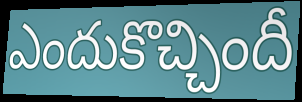
ఎందుకొచ్చిందీ